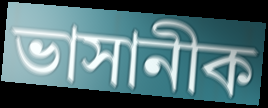
ভাসানীক